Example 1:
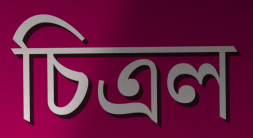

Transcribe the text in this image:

চিত্রল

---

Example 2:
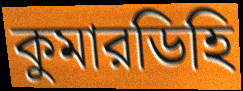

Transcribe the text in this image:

কুমারডিহি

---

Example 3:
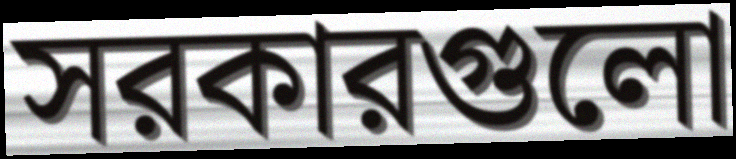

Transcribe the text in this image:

সরকারগুলো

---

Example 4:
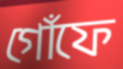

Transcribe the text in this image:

গোঁফে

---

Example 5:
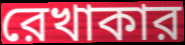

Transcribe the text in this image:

রেখাকার